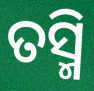
ତସ୍ମି